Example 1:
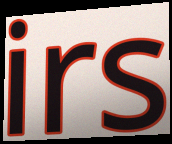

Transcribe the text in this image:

irs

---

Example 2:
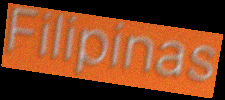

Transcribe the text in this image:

Filipinas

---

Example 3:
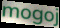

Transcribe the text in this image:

mogoj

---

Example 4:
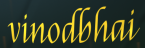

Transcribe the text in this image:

vinodbhai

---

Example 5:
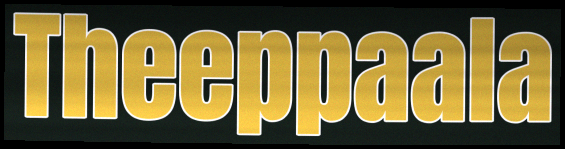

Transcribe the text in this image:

Theeppaala